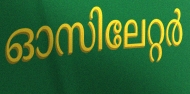
ഓസിലേറ്റർ